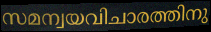
സമന്വയവിചാരത്തിനു